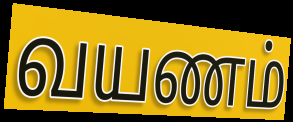
வயணம்